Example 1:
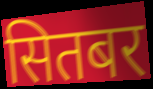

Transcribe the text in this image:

सितबर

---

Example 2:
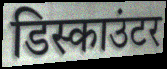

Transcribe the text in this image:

डिस्काउंटर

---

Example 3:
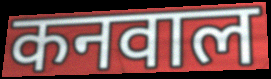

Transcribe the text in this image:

कनवाल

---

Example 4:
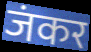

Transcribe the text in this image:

जंकर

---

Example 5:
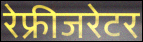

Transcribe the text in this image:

रेफ्रीजरेटर